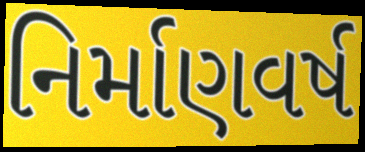
નિર્માણવર્ષ